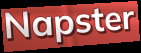
Napster